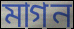
মাগন